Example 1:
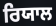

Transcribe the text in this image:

ਰਿਯਾਲ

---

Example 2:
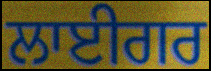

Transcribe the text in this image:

ਲਾਈਗਰ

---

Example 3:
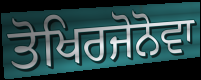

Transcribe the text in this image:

ਤੋਖਿਰਜੋਨੋਵਾ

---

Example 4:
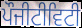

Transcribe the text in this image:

ਪੌਜੀਟੀਵਿਟੀ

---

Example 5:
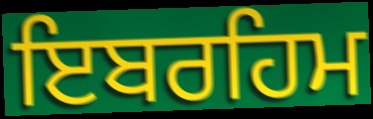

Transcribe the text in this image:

ਇਬਰਹਿਮ